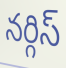
నర్గిస్